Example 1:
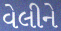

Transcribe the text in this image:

વેલીને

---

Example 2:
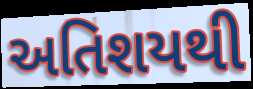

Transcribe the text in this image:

અતિશયથી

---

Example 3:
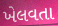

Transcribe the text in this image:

ખેલવતા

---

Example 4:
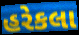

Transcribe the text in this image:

હરેકલા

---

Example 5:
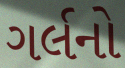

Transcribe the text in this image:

ગર્લનો